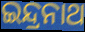
ଇନ୍ଦ୍ରନାଥ